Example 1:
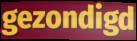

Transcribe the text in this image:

gezondigd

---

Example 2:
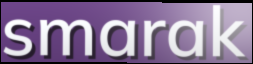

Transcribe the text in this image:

smarak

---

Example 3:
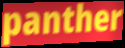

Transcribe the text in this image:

panther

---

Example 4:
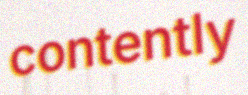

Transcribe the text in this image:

contently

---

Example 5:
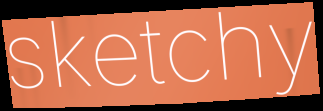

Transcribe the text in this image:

sketchy